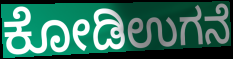
ಕೋಡಿಉಗನೆ